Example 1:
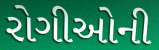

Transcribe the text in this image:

રોગીઓની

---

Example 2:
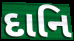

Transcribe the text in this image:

દાનિ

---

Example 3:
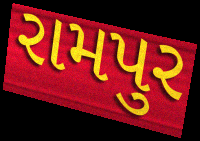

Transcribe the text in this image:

રામપુર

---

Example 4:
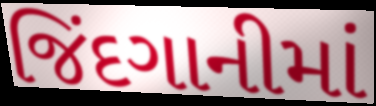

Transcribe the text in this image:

જિંદગાનીમાં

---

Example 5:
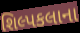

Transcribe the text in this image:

શિલ્પકલાના